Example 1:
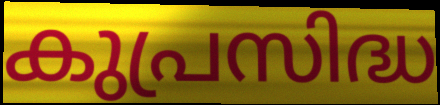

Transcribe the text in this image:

കുപ്രസിദ്ധ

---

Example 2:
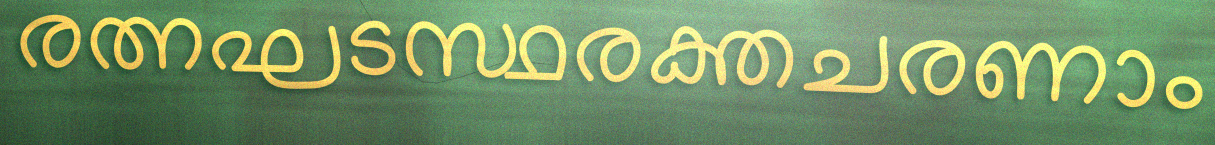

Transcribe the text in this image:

രത്നഘടസ്ഥരക്തചരണാം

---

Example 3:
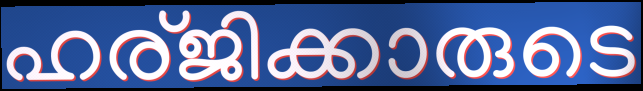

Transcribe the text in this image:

ഹര്ജിക്കാരുടെ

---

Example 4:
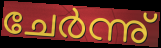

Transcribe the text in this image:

ചേർന്നു്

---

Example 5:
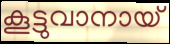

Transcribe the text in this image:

കൂട്ടുവാനായ്